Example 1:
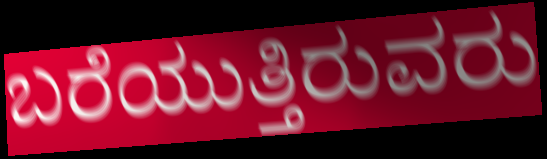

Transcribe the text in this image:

ಬರೆಯುತ್ತಿರುವರು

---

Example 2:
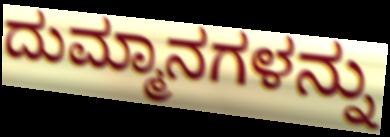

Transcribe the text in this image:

ದುಮ್ಮಾನಗಳನ್ನು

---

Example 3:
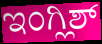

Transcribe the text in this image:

ಇಂಗ್ಲಿಶ್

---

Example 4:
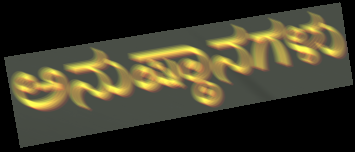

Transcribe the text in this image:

ಅನುಷ್ಠಾನಗಳು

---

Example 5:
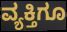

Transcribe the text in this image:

ವ್ಯಕ್ತಿಗೂ